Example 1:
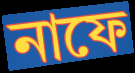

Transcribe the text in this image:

নাফে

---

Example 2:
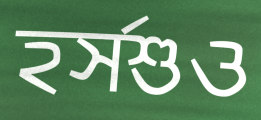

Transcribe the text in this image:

হর্সশুও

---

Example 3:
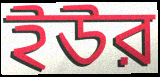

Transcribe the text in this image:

ইউর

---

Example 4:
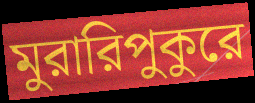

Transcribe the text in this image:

মুরারিপুকুরে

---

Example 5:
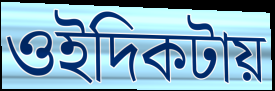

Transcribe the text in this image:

ওইদিকটায়